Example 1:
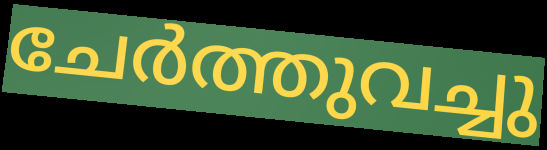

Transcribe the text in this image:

ചേർത്തുവച്ചു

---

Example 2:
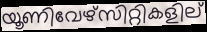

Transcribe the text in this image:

യൂണിവേഴ്സിറ്റികളില്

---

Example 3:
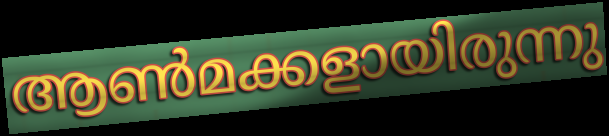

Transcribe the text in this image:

ആൺമക്കളായിരുന്നു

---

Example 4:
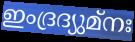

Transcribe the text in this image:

ഇംദ്രദ്യുമ്നഃ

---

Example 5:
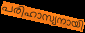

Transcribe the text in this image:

പരിഹാസ്യനായി